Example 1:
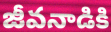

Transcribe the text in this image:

జీవనాడికి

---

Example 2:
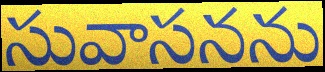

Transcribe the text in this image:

సువాసనను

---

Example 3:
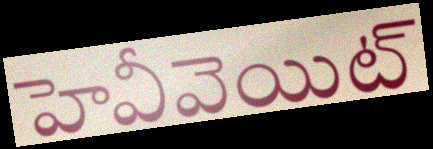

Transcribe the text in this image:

హెవీవెయిట్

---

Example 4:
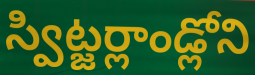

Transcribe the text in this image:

స్విట్జర్లాండ్లోని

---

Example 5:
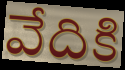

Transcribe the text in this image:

వేదికి